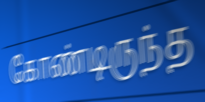
கோண்டிருந்த